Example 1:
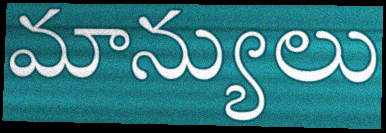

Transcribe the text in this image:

మాన్యులు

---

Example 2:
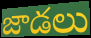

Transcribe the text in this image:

జాడలు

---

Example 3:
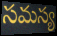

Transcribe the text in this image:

సమస్య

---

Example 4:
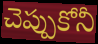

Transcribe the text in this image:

చెప్పుకోనీ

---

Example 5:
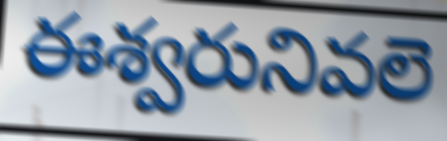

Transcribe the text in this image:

ఈశ్వరునివలె